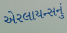
એરલાયન્સનું